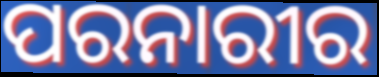
ପରନାରୀର